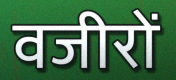
वजीरों